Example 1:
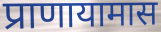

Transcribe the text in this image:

प्राणायामास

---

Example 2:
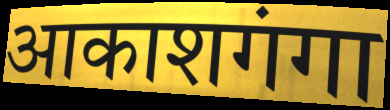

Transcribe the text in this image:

आकाशगंगा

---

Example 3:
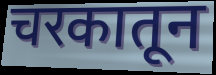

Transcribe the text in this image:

चरकातून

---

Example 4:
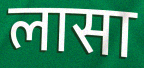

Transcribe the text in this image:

लासा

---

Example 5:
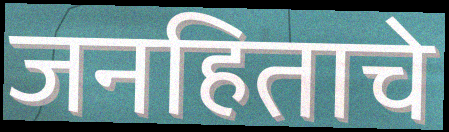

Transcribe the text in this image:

जनहिताचे